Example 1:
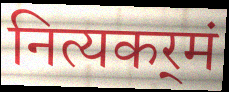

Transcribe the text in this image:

नित्यकर्मं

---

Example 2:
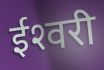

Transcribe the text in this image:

ईश्वरी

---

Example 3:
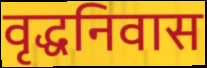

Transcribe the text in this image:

वृद्धनिवास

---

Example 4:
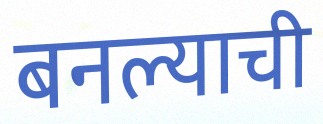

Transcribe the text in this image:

बनल्याची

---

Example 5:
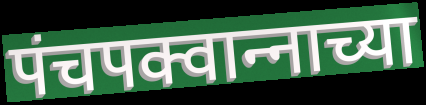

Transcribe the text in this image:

पंचपक्वान्नाच्या